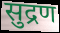
सुद्रण